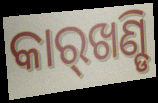
କାର୍‌ଖଣ୍ଡି